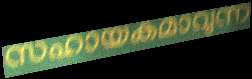
സഹായകമാവുന്ന